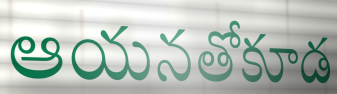
ఆయనతోకూడ